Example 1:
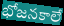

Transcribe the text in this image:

భోజనకాలే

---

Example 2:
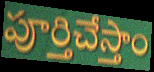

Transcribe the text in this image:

పూర్తిచేస్తాం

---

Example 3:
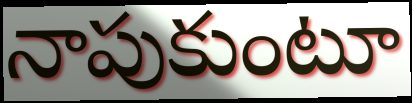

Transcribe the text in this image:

నాపుకుంటూ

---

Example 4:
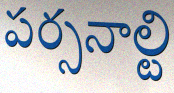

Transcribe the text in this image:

పర్సనాల్టి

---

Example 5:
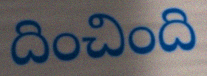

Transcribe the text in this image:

దించింది